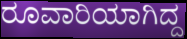
ರೂವಾರಿಯಾಗಿದ್ದ